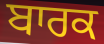
ਬਾਰਕ